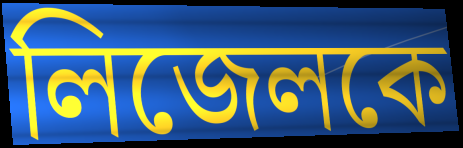
লিজেলকে